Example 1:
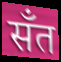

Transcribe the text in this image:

सँत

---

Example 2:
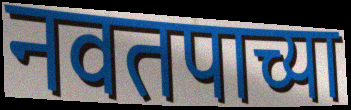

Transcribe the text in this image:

नवतपाच्या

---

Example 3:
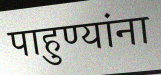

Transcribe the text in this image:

पाहुण्यांना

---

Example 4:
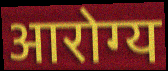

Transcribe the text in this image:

आरोग्य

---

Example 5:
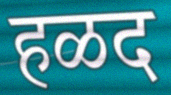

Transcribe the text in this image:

हळद